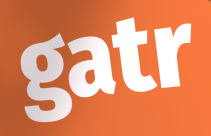
gatr